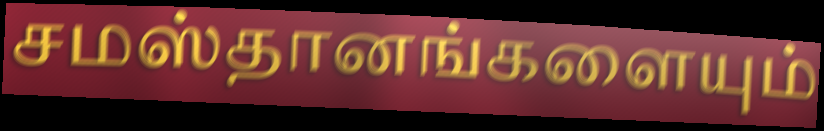
சமஸ்தானங்களையும்